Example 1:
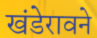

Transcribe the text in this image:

खंडेरावने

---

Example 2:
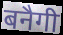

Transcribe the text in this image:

बनैगी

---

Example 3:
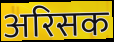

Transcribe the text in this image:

अरिसक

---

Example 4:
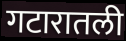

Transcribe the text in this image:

गटारातली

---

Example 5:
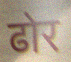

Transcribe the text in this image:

ढोर